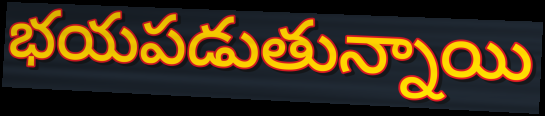
భయపడుతున్నాయి